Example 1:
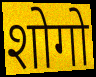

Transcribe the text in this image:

शोगो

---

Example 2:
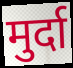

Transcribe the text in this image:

मुर्दा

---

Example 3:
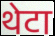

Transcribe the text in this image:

थेटा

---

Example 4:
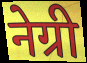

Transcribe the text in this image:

नेग्री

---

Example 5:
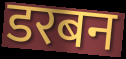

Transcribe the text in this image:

डरबन